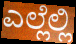
ಎಲ್ಲೆಲ್ಲಿ